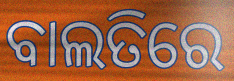
ବାଲତିରେ